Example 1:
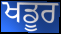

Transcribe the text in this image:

ਖਡੂਰ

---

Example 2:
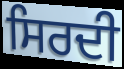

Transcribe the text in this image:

ਸਿਰਦੀ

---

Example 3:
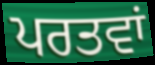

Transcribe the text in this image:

ਪਰਤਵਾਂ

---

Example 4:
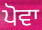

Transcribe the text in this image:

ਪੋਵਾ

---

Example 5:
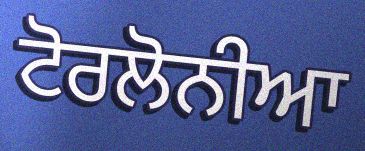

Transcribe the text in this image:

ਟੋਰਲੋਨੀਆ